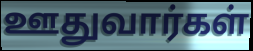
ஊதுவார்கள்